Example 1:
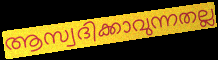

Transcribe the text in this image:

ആസ്വദിക്കാവുന്നതല്ല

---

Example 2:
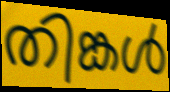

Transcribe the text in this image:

തിങ്കൾ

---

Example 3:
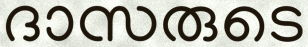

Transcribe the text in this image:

ദാസരുടെ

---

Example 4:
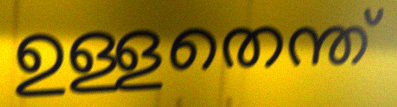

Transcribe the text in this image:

ഉള്ളതെന്ത്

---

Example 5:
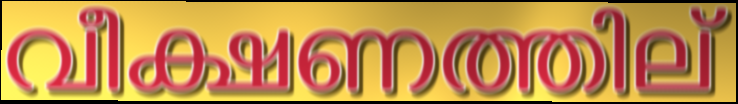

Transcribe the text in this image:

വീക്ഷണത്തില്